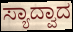
ಸ್ಯಾದ್ವಾದ